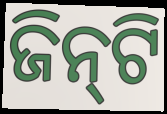
ଜିନ୍‌ଟି